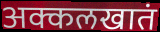
अक्कलखातं